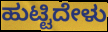
ಹುಟ್ಟಿದೇಳು